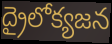
ద్రైలోక్యజన